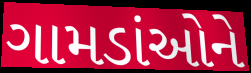
ગામડાંઓને